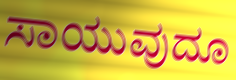
ಸಾಯುವುದೂ